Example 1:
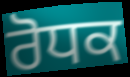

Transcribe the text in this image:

ਰੋਧਕ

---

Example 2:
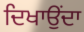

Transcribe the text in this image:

ਦਿਖਾਉਂਦਾ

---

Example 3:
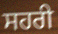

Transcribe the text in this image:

ਸਹਰੀ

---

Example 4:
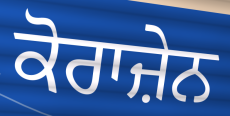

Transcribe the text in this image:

ਕੋਰਾਜ਼ੇਨ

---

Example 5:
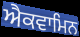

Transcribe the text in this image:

ਐਕਵਾਮਿਨ